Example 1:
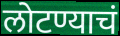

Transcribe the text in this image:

लोटण्याचं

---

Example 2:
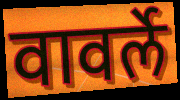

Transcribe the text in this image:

वावर्ले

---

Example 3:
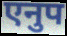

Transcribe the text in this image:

एनुप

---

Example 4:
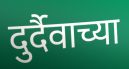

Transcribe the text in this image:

दुर्दैवाच्या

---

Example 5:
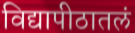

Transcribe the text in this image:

विद्यापीठातलं